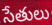
సేతులు